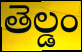
తెల్డం